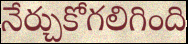
నేర్చుకోగలిగింది